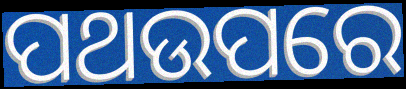
ପଥଉପରେ